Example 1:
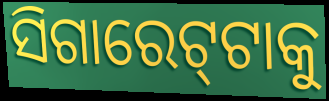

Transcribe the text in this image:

ସିଗାରେଟ୍‍ଟାକୁ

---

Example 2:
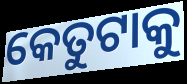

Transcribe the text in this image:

କେତୁଟାକୁ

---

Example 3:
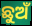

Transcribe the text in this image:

ଛୁଅଁ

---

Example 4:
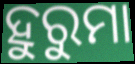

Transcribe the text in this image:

ହୁରୁମା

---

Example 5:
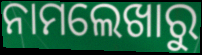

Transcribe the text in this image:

ନାମଲେଖାରୁ